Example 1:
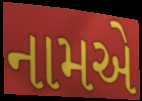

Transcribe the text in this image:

નામએ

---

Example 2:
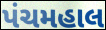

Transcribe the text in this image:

પંચમહાલ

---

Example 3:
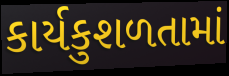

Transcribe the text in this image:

કાર્યકુશળતામાં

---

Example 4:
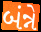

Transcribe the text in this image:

બંન્ને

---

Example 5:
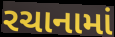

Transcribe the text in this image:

રચાનામાં